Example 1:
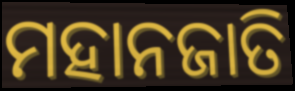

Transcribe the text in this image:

ମହାନଜାତି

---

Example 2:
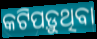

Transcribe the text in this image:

କଟିପଡ଼ୁଥିବା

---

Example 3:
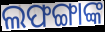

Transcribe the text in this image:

ଲଫଙ୍ଗାଙ୍କ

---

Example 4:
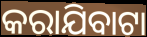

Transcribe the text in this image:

କରାଯିବାଟା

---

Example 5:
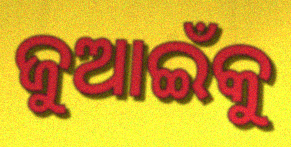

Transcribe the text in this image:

ଜୁଆଇଁକୁ